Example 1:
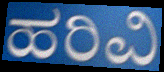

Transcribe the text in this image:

ಹರಿವಿ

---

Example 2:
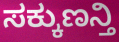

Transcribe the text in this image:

ಸಕ್ಕುಣನ್ತಿ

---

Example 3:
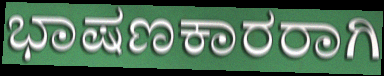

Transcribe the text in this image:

ಭಾಷಣಕಾರರಾಗಿ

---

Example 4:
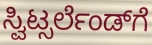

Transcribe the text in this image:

ಸ್ವಿಟ್ಸರ್ಲೆಂಡ್‌ಗೆ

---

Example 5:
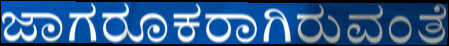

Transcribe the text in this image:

ಜಾಗರೂಕರಾಗಿರುವಂತೆ